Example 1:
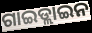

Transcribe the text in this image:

ଗାଇଡ୍ଲାଇନ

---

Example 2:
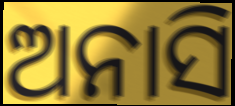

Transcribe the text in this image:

ଅନାସି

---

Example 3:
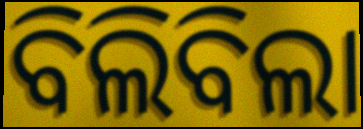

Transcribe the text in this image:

ବିଲିବିଲା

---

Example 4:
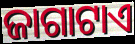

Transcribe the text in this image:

ଜାଗାଟାଏ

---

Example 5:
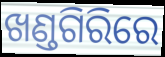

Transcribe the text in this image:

ଖଣ୍ଡଗିରିରେ